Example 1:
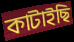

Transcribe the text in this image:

কাটাইছি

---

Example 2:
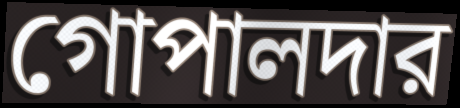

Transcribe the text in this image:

গোপালদার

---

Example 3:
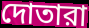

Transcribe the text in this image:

দোতারা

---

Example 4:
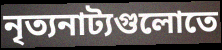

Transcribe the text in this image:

নৃত্যনাট্যগুলোতে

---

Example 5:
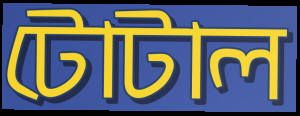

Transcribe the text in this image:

টোটাল